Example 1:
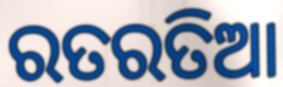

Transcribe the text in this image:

ରତରତିଆ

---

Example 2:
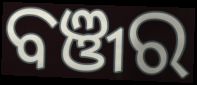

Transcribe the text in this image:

ବଞ୍ଜର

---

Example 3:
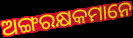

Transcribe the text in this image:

ଅଙ୍ଗରକ୍ଷକମାନେ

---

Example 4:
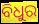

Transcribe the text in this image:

ବିଧୁର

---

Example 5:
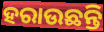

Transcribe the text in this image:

ହରାଉଛନ୍ତି